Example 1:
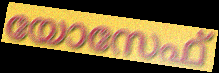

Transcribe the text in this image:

യോസേഫ്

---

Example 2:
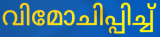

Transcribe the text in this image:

വിമോചിപ്പിച്ച്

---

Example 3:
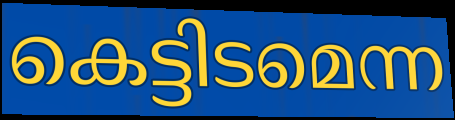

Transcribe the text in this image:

കെട്ടിടമെന്ന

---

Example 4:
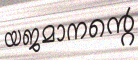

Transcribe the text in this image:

യജമാനന്റെ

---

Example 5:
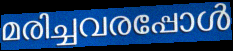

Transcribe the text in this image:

മരിച്ചവരപ്പോൾ